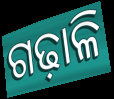
ଗଢ଼ାଳି